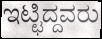
ಇಟ್ಟಿದ್ದವರು